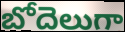
బోదెలుగా